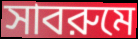
সাবরুমে